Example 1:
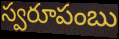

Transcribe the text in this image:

స్వరూపంబు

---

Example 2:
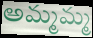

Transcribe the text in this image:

అమ్మమ్మ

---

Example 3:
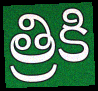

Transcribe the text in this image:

త్రికి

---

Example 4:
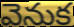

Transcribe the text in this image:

వెనుక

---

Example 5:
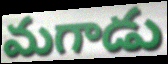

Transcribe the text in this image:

మగాడు